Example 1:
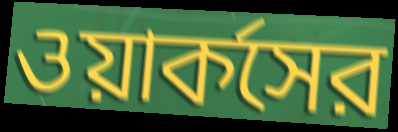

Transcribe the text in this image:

ওয়ার্কসের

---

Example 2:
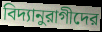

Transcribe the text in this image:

বিদ্যানুরাগীদের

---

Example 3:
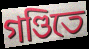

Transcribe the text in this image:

গণ্ডিতে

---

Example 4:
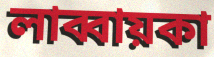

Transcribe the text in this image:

লাব্বায়কা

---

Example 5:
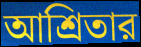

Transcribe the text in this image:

আশ্রিতার